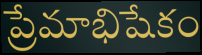
ప్రేమాభిషేకం